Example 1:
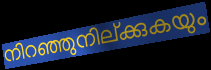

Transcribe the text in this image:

നിറഞ്ഞുനില്ക്കുകയും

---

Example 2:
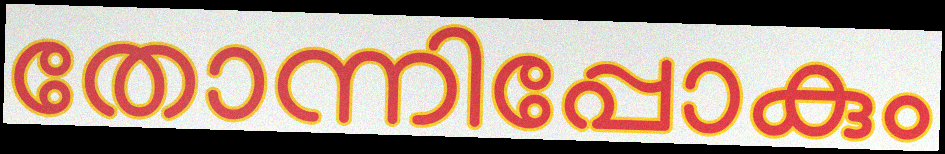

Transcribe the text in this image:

തോന്നിപ്പോകും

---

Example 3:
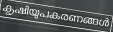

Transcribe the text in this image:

കൃഷിയുപകരണങ്ങൾ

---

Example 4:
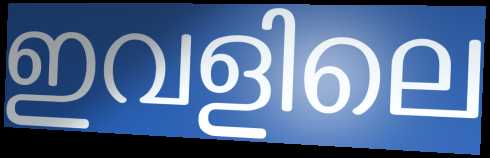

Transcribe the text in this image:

ഇവളിലെ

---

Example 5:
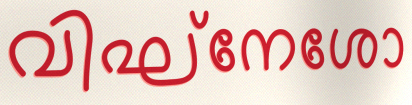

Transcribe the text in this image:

വിഘ്നേശോ